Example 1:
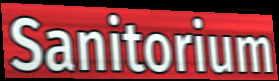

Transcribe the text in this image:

Sanitorium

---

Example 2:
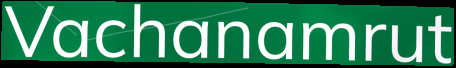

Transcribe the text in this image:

Vachanamrut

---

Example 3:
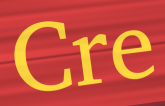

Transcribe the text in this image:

Cre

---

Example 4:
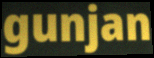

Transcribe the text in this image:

gunjan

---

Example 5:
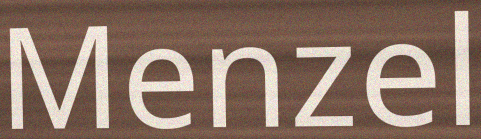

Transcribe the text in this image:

Menzel